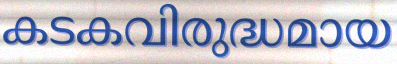
കടകവിരുദ്ധമായ